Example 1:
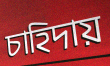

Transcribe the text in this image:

চাহিদায়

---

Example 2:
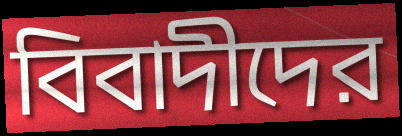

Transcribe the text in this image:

বিবাদীদের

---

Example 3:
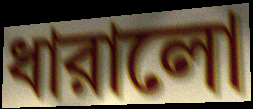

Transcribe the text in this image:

ধারালো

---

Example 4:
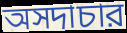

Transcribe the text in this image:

অসদাচার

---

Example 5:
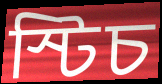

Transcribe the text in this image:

স্টিচ